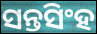
ସନ୍ତସିଂହ